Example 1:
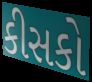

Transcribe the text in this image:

કીસકો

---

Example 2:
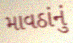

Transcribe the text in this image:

માવઠાંનું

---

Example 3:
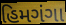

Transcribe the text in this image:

હિમગંગા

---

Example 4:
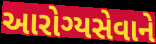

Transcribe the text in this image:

આરોગ્યસેવાને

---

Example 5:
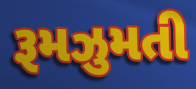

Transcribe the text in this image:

રૂમઝુમતી